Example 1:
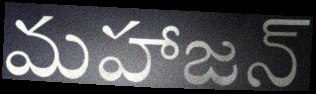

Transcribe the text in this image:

మహాజన్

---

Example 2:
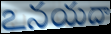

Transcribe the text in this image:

ఽనయదా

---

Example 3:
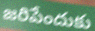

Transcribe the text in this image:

జరిపేందుకు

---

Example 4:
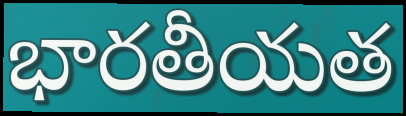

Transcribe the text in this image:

భారతీయత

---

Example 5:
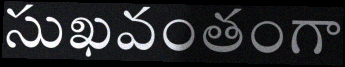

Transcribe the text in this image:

సుఖవంతంగా